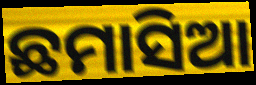
ଛମାସିଆ